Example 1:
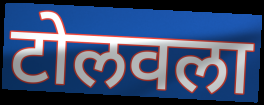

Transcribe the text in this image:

टोलवला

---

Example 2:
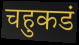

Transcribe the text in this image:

चहुकडं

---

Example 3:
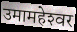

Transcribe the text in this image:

उमामहेश्वर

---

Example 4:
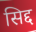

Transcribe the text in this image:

सिद्द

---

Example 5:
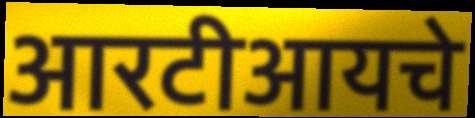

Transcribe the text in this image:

आरटीआयचे